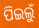
ପିଇଲୁଁ